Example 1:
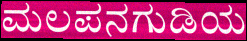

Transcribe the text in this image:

ಮಲಪನಗುಡಿಯ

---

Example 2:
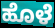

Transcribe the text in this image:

ಹೊಳೆ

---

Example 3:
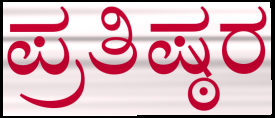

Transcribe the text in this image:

ಪ್ರತಿಷ್ಠರ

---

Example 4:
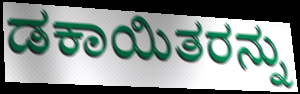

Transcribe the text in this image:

ಡಕಾಯಿತರನ್ನು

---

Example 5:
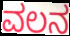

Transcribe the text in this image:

ವಲನ